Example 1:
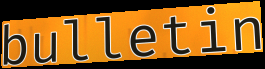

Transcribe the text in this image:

bulletin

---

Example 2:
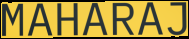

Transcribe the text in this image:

MAHARAJ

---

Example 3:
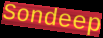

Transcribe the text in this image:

Sondeep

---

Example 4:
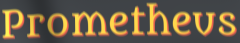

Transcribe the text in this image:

Prometheus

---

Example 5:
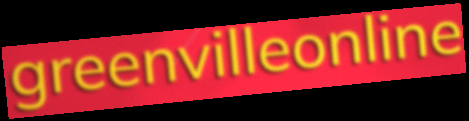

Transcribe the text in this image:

greenvilleonline